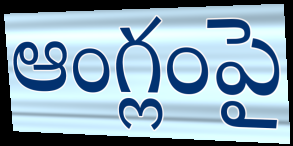
ఆంగ్లంపై